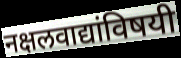
नक्षलवाद्यांविषयी